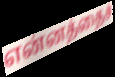
என்னத்தைச்